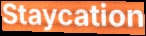
Staycation